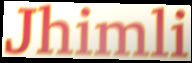
Jhimli